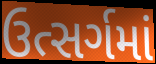
ઉત્સર્ગમાં